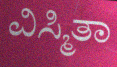
ವಿಸ್ಮಿತಾ